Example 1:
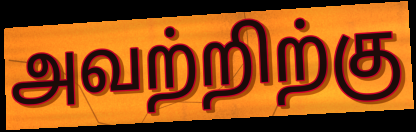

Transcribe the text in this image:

அவற்றிற்கு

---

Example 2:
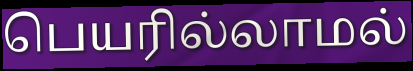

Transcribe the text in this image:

பெயரில்லாமல்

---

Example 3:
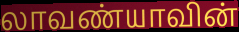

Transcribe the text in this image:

லாவண்யாவின்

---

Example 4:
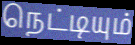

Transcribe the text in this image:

நெட்டியும்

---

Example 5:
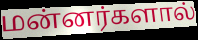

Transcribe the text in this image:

மன்னர்களால்